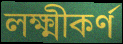
লক্ষ্মীকর্ণ